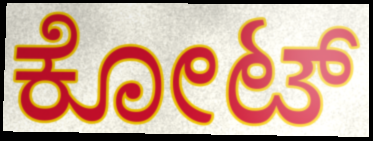
ಕೋಟ್